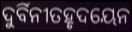
ଦୁର୍ବିନୀତହୃଦୟେନ